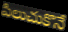
పిలుచుకొనే